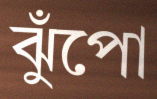
ঝুঁপো